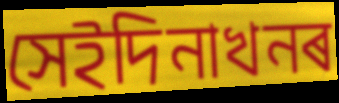
সেইদিনাখনৰ